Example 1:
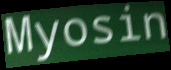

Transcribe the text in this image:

Myosin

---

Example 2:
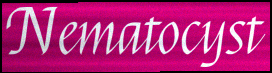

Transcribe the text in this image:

Nematocyst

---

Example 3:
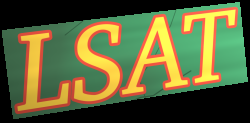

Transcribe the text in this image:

LSAT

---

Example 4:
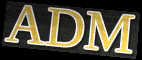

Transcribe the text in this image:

ADM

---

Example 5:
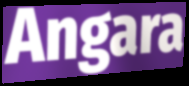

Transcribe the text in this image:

Angara